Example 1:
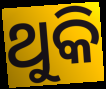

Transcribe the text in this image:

ଥୁକି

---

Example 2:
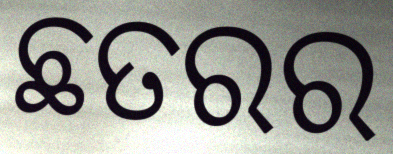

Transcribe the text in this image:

ଛତରର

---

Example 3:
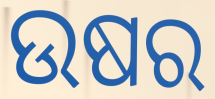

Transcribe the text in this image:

ଉଷର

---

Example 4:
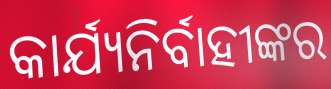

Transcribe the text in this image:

କାର୍ଯ୍ୟନିର୍ବାହୀଙ୍କର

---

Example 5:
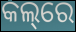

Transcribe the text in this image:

କଲ୍‌ରେ